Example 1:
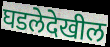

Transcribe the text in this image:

घडलेदेखील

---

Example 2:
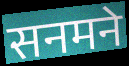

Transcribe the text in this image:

सनमने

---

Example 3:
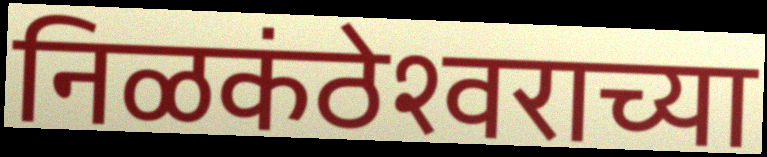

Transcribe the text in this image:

निळकंठेश्वराच्या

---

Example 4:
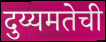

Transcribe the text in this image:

दुय्यमतेची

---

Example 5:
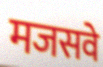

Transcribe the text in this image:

मजसवे